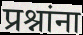
प्रश्नांना